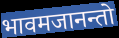
भावमजानन्तो